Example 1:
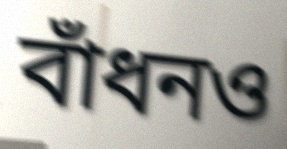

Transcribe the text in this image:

বাঁধনও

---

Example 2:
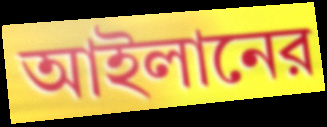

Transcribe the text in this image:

আইলানের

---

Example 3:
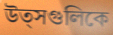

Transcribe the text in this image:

উত্সগুলিকে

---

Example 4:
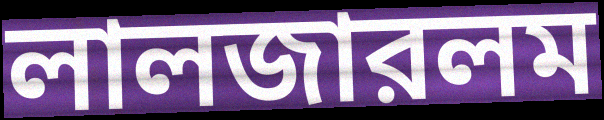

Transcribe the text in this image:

লালজারলম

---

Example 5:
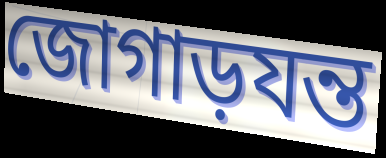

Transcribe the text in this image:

জোগাড়যন্ত